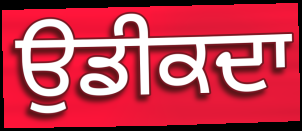
ਉਡੀਕਦਾ